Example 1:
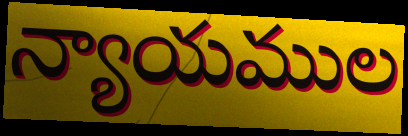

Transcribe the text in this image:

న్యాయముల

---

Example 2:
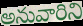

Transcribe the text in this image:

అనువారిని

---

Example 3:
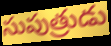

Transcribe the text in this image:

సుపుత్రుడు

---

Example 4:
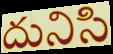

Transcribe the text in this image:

దునిసి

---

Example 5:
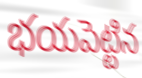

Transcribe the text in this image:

భయపెట్టిన